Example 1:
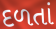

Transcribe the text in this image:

દળતાં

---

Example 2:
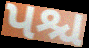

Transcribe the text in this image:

પશ્ચ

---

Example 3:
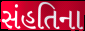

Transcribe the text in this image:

સંહતિના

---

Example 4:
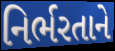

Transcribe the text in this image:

નિર્ભરતાને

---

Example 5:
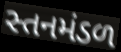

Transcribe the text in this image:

સ્તનમંડળ